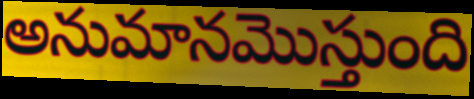
అనుమానమొస్తుంది